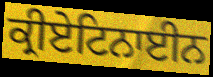
ਕ੍ਰੀਏਟਿਨਾਈਨ